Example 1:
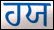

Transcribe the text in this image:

ਹਯ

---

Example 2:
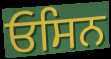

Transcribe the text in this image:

ਓਸਿਨ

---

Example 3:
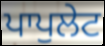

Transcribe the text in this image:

ਪਾਪੁਲੇਟ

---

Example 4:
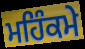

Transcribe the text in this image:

ਮਹਿੰਕਮੇ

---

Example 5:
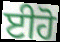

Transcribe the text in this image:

ਈਹੋ